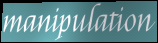
manipulation